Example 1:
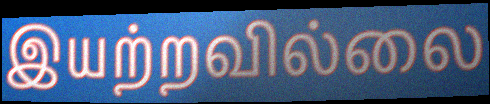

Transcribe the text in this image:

இயற்றவில்லை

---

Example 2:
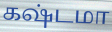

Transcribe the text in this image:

கஷ்டமா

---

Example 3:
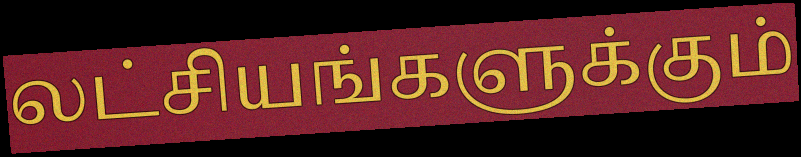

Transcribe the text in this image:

லட்சியங்களுக்கும்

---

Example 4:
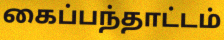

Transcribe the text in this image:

கைப்பந்தாட்டம்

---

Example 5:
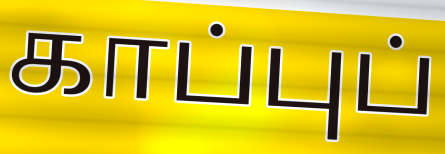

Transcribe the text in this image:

காப்புப்